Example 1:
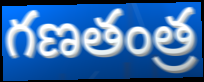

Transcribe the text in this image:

గణతంత్ర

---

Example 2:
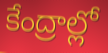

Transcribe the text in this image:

కేంద్రాల్లో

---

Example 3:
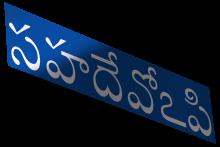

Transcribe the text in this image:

సహదేవోఽపి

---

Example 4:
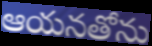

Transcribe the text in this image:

ఆయనతోను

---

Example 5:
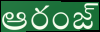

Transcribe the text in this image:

ఆరంజ్